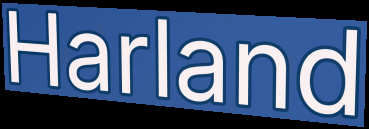
Harland